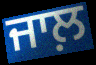
ਜਾਲ਼